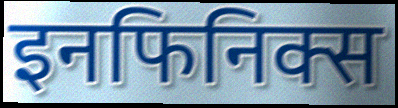
इनफिनिक्स